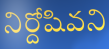
నిర్దోషివని